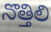
నొత్తిలి